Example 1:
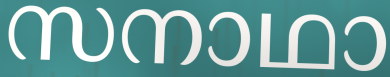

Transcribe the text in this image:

സനാഥാ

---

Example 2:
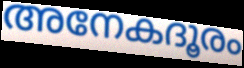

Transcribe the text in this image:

അനേകദൂരം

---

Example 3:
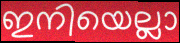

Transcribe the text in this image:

ഇനിയെല്ലാ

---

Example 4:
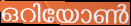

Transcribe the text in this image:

ഒറിയോൺ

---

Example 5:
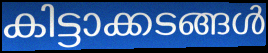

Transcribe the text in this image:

കിട്ടാക്കടങ്ങൾ